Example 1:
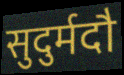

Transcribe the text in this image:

सुदुर्मदौ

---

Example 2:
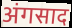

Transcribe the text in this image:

अंगसाद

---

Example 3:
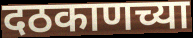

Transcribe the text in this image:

दठकाणच्या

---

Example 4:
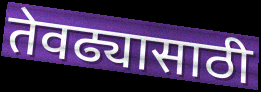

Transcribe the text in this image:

तेवढ्यासाठी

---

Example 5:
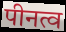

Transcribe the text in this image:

पीनत्व